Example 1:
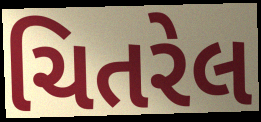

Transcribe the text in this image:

ચિતરેલ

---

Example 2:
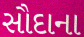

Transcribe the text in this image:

સૌદાના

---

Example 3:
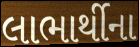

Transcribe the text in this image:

લાભાર્થીના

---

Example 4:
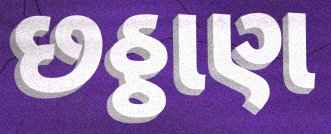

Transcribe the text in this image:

છઠ્ઠાણ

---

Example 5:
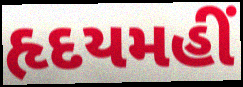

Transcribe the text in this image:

હૃદયમહીં